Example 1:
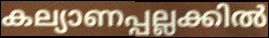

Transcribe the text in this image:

കല്യാണപ്പല്ലക്കിൽ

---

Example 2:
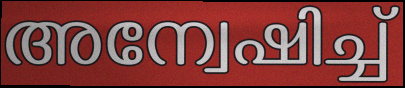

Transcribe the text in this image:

അന്വേഷിച്ച്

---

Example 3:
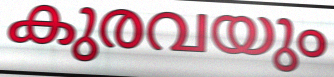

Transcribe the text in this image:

കുരവയും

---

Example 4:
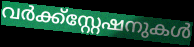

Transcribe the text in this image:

വർക്ക്സ്റ്റേഷനുകൾ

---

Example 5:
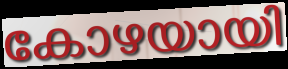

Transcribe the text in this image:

കോഴയായി